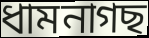
ধামনাগছ